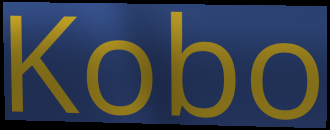
Kobo